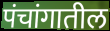
पंचांगातील